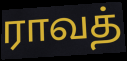
ராவத்